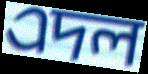
এদল